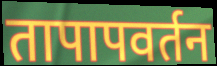
तापापवर्तन